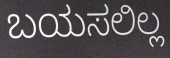
ಬಯಸಲಿಲ್ಲ